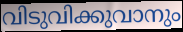
വിടുവിക്കുവാനും